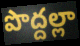
పొద్దల్లా